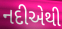
નદીએથી